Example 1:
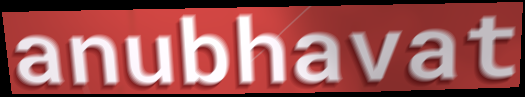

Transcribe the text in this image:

anubhavat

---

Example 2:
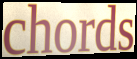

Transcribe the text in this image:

chords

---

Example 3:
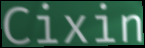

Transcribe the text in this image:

Cixin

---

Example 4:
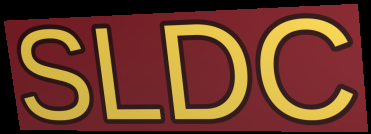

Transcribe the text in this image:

SLDC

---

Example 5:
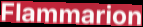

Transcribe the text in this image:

Flammarion